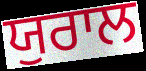
ਯੁਰਾਲ